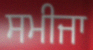
ਸਮੀਜਾ